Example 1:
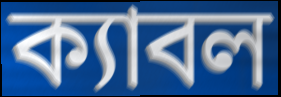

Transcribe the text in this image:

ক্যাবল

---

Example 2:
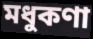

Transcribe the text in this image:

মধুকণা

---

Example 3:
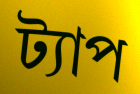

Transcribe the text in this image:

ট্যাপ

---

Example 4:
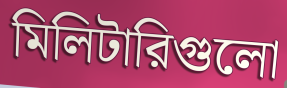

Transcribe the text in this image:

মিলিটারিগুলো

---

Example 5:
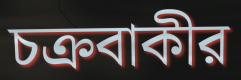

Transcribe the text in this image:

চক্রবাকীর